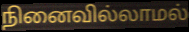
நினைவில்லாமல்